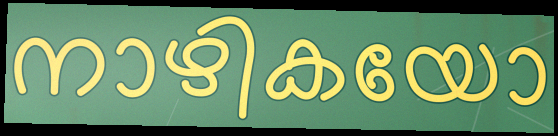
നാഴികയോ